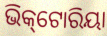
ଭିକ୍‌ଟୋରିୟା